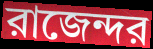
রাজেন্দর